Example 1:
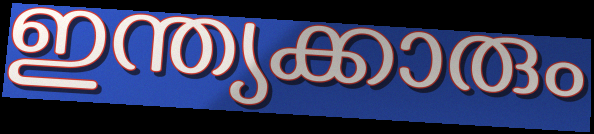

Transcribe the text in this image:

ഇന്ത്യക്കാരും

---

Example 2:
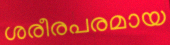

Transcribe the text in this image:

ശരീരപരമായ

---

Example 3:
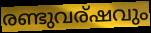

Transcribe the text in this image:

രണ്ടുവര്ഷവും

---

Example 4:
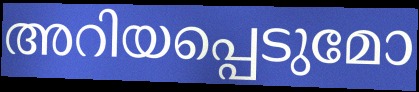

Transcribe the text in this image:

അറിയപ്പെടുമോ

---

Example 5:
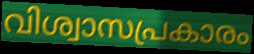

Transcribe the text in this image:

വിശ്വാസപ്രകാരം